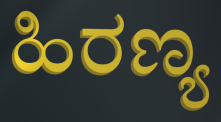
ಹಿರಣ್ಯ